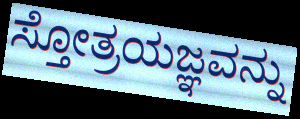
ಸ್ತೋತ್ರಯಜ್ಞವನ್ನು